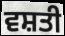
ਵਸ਼ਤੀ